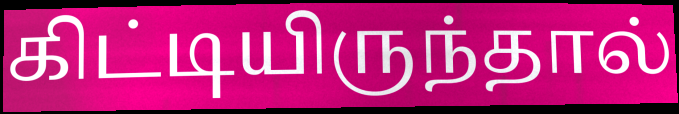
கிட்டியிருந்தால்